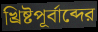
খ্রিষ্টপূর্বাব্দের